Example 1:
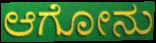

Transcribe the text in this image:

ಆಗೋನು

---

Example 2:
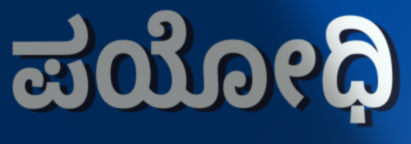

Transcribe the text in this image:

ಪಯೋಧಿ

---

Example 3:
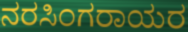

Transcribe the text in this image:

ನರಸಿಂಗರಾಯರ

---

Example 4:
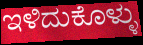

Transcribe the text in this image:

ಇಳಿದುಕೊಳ್ಳು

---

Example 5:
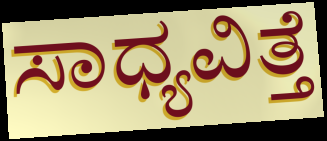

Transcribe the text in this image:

ಸಾಧ್ಯವಿತ್ತೆ